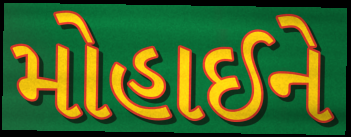
મોહાઈને